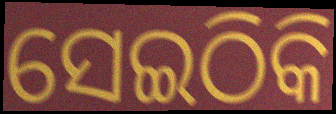
ସେଇଠିକି